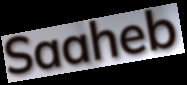
Saaheb